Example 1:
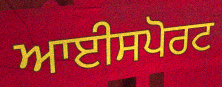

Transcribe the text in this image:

ਆਈਸਪੋਰਟ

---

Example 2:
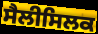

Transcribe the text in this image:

ਸੈਲੀਸਿਲਕ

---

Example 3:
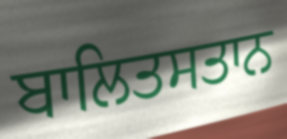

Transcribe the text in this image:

ਬਾਲਿਤਸਤਾਨ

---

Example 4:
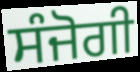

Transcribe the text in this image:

ਸੰਜੋਗੀ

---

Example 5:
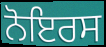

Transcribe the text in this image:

ਨੋਇਰਸ